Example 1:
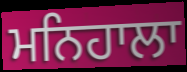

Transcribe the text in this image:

ਮਨਿਹਾਲਾ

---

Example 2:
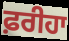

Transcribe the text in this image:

ਫ਼ਰੀਹਾ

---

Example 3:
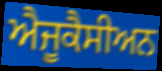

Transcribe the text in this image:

ਐਜੂਕੈਸੀਅਨ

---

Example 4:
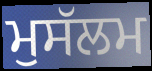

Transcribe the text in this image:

ਮੁਸੱਲਮ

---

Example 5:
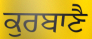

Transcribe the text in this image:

ਕੁਰਬਾਣੈ